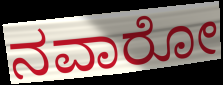
ನವಾರೋ